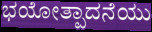
ಭಯೋತ್ಪಾದನೆಯು